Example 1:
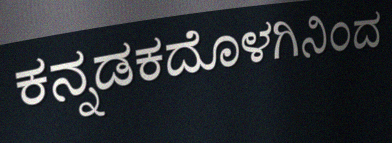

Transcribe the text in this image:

ಕನ್ನಡಕದೊಳಗಿನಿಂದ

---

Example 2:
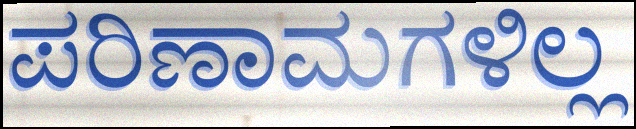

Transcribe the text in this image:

ಪರಿಣಾಮಗಳಿಲ್ಲ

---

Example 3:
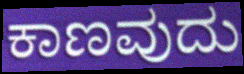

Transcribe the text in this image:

ಕಾಣವುದು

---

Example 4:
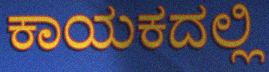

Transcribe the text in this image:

ಕಾಯಕದಲ್ಲಿ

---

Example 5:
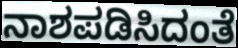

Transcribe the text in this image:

ನಾಶಪಡಿಸಿದಂತೆ